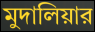
মুদালিয়ার